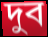
দুব